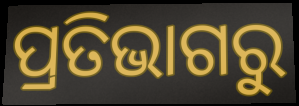
ପ୍ରତିଭାଗରୁ